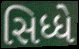
સિધ્ધે